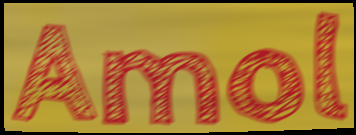
Amol